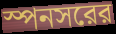
স্পনসরের